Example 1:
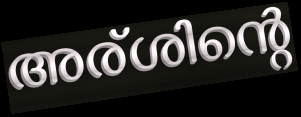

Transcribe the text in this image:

അര്ശിന്റെ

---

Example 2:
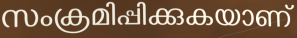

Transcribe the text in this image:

സംക്രമിപ്പിക്കുകയാണ്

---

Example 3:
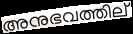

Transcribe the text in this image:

അനുഭവത്തില്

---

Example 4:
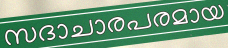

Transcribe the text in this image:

സദാചാരപരമായ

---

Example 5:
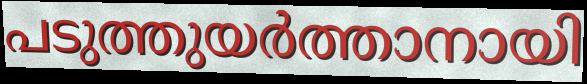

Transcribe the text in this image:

പടുത്തുയർത്താനായി